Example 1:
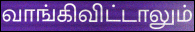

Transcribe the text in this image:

வாங்கிவிட்டாலும்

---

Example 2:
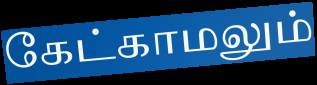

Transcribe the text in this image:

கேட்காமலும்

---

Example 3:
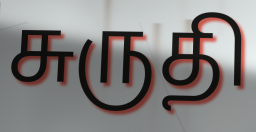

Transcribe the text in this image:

சுருதி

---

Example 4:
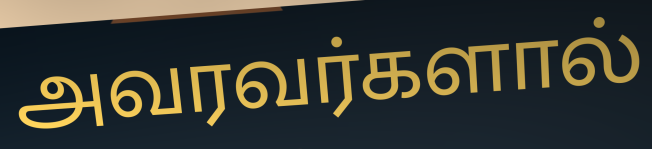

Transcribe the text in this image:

அவரவர்களால்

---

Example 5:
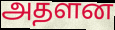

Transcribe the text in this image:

அதளன